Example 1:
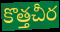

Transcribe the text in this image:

కొత్తచీర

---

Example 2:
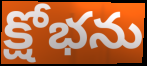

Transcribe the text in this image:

క్షోభను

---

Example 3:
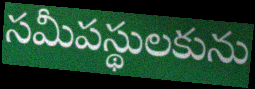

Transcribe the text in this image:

సమీపస్థులకును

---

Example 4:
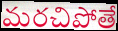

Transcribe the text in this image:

మరచిపోతే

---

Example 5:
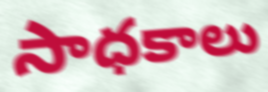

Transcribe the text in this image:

సాధకాలు